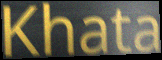
Khata